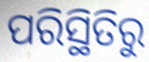
ପରିସ୍ଥିତିରୁ